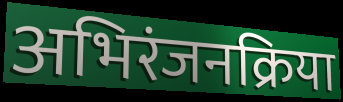
अभिरंजनक्रिया